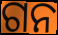
ଗନ